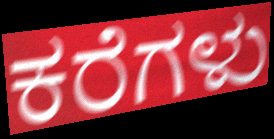
ಕರೆಗಳು